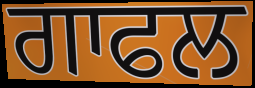
ਗਾਫਲ